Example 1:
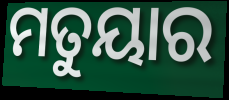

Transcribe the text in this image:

ମତୁୟାର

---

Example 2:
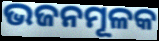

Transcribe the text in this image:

ଭଜନମୂଳକ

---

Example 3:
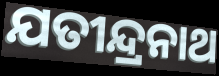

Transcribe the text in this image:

ଯତୀନ୍ଦ୍ରନାଥ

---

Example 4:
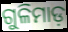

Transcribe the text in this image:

ଗୁଳିମାଡ଼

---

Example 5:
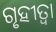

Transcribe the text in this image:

ଗୃହୀତ୍ଵା